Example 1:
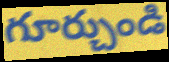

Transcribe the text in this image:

గూర్చుండి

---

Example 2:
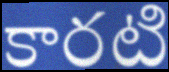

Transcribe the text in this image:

కారటి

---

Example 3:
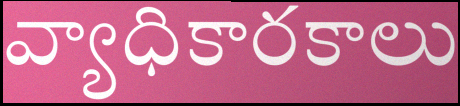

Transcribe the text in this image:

వ్యాధికారకాలు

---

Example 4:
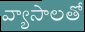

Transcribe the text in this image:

వ్యాసాలతో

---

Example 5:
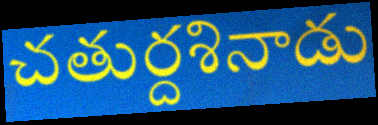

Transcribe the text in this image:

చతుర్దశినాడు